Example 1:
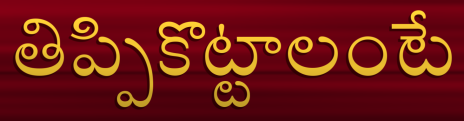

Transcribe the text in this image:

తిప్పికొట్టాలంటే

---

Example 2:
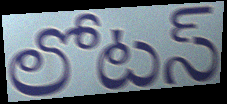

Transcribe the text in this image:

లోటస్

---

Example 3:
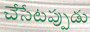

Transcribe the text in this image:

చేసేటప్పుడు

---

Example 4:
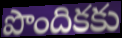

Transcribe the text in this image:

పొందికకు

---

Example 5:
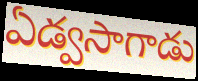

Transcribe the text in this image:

ఏడ్వసాగాడు